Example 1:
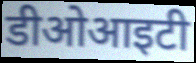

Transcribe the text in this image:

डीओआइटी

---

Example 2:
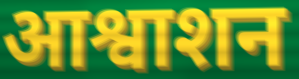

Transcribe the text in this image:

आश्वाशन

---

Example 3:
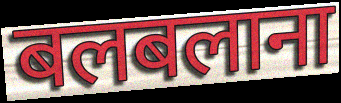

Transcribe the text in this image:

बलबलाना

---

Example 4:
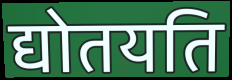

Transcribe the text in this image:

द्योतयति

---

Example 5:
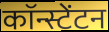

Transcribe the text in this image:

कॉन्स्टेंटन